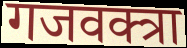
गजवक्त्रा